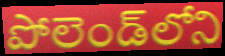
పోలెండ్‌లోని